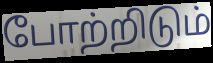
போற்றிடும்